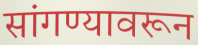
सांगण्यावरून